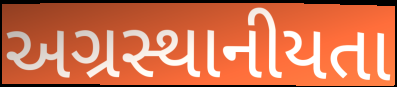
અગ્રસ્થાનીયતા